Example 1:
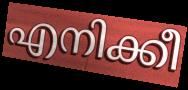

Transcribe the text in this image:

എനിക്കീ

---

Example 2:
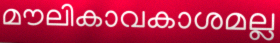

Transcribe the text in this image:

മൗലികാവകാശമല്ല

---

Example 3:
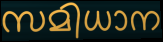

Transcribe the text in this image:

സമിധാന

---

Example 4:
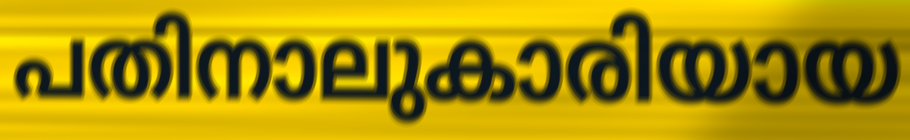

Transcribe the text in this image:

പതിനാലുകാരിയായ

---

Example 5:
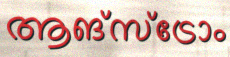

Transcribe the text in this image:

ആങ്സ്ട്രോം